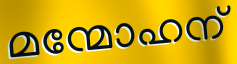
മന്മോഹന്